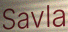
Savla